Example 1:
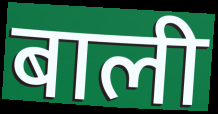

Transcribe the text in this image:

बाली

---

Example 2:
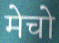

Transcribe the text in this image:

मेचो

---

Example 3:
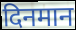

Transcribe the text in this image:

दिनमान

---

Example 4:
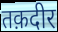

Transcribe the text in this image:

तक़दीर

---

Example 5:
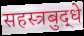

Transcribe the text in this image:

सहस्त्रबुद्धे